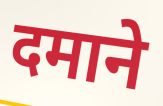
दमाने